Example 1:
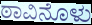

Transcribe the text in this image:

ಠಾವಿನೊಳು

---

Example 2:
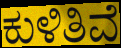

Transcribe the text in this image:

ಕುಳಿತಿವೆ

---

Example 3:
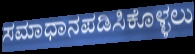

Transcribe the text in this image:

ಸಮಾಧಾನಪಡಿಸಿಕೊಳ್ಳಲು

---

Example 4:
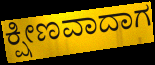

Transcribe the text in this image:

ಕ್ಷೀಣವಾದಾಗ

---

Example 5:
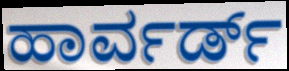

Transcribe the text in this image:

ಹಾರ್ವರ್ಡ್